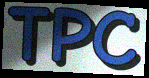
TPC